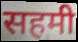
सहमी